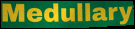
Medullary